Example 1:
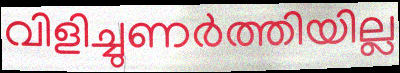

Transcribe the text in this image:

വിളിച്ചുണർത്തിയില്ല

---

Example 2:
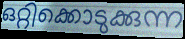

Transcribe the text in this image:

ഒറ്റിക്കൊടുക്കുന്ന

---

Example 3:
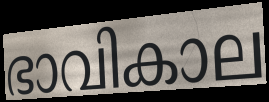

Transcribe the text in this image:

ഭാവികാല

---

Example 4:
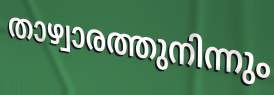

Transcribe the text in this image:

താഴ്വാരത്തുനിന്നും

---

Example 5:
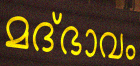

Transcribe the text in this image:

മദ്ഭാവം